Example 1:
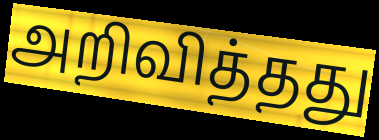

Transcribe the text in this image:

அறிவித்தது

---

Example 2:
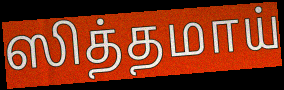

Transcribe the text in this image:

ஸித்தமாய்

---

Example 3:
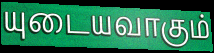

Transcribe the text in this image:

யுடையவாகும்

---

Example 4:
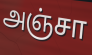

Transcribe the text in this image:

அஞ்சா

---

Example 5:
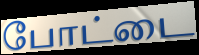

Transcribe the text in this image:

போட்டை